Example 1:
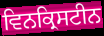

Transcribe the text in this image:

ਵਿਨਕ੍ਰਿਸਟੀਨ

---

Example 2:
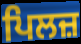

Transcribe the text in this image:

ਪਿਲਜ਼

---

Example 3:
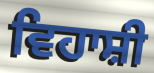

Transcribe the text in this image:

ਵਿਹਾਸ਼ੀ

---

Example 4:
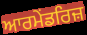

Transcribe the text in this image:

ਆਰਮੇਂਡਰਿਜ਼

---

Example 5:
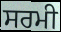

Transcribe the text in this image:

ਸਰਮੀ